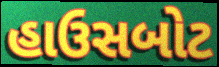
હાઉસબોટ